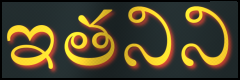
ఇతనిని